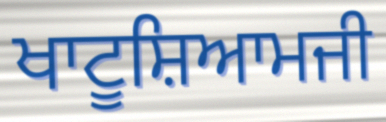
ਖਾਟੂਸ਼ਿਆਮਜੀ